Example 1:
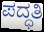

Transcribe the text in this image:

ಪದ್ಧತಿ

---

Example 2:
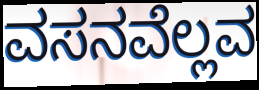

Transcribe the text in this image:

ವಸನವೆಲ್ಲವ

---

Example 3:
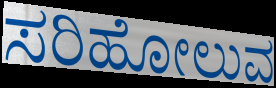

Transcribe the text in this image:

ಸರಿಹೋಲುವ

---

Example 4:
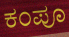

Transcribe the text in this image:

ಕಂಪೂ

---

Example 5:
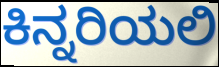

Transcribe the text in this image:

ಕಿನ್ನರಿಯಲಿ